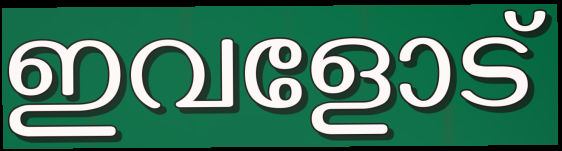
ഇവളോട്